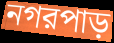
নগরপাড়